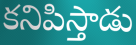
కనిపిస్తాడు